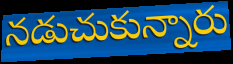
నడుచుకున్నారు